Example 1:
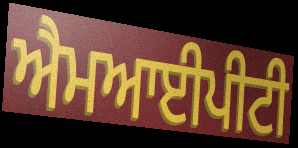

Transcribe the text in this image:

ਐਮਆਈਪੀਟੀ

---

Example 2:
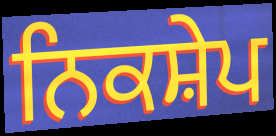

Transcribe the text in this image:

ਨਿਕਸ਼ੇਪ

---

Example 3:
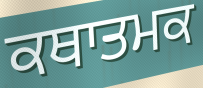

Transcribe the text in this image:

ਕਥਾਤਮਕ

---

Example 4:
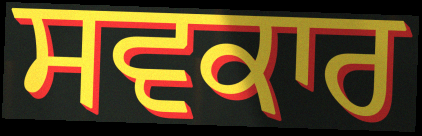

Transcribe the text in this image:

ਸਵਕਾਰ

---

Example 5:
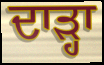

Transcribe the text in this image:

ਦਾੜ੍ਹਾ